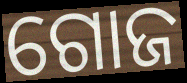
ଗୋଜ